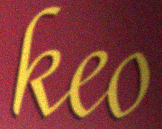
keo